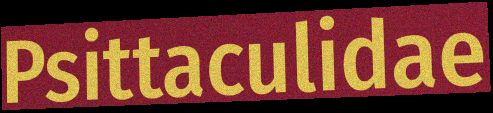
Psittaculidae